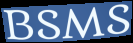
BSMS